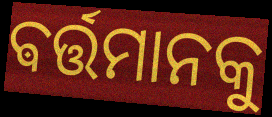
ଵର୍ତ୍ତମାନକୁ